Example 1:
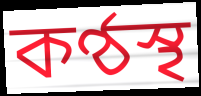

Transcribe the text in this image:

কণ্ঠস্থ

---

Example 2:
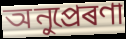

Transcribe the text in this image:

অনুপ্ৰেৰণা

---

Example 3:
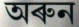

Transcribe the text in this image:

অৰুন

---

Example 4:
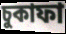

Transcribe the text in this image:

চুকাফা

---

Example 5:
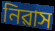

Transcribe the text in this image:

নিৱাস